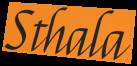
Sthala